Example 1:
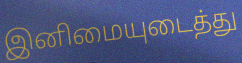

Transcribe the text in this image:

இனிமையுடைத்து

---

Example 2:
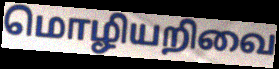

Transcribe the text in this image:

மொழியறிவை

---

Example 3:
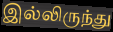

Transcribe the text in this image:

இல்லிருந்து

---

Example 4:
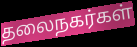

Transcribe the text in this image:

தலைநகர்கள்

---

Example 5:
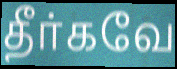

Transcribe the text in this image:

தீர்கவே